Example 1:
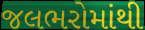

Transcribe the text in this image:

જલભરોમાંથી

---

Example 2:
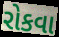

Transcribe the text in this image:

રોકવા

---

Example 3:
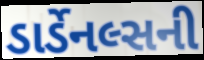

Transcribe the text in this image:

ડાર્ડેનલ્સની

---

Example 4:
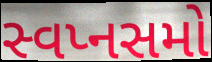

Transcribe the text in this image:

સ્વપ્નસમો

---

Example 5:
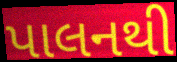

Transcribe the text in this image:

પાલનથી